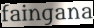
faingana